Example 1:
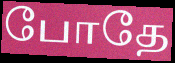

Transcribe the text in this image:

போதே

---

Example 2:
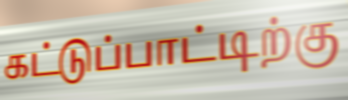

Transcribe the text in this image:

கட்டுப்பாட்டிற்கு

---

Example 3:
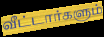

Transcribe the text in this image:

வீட்டார்களும்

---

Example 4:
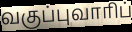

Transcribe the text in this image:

வகுப்புவாரிப்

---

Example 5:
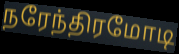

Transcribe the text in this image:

நரேந்திரமோடி